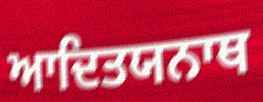
ਆਦਿਤਯਨਾਥ